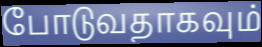
போடுவதாகவும்